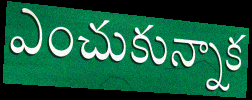
ఎంచుకున్నాక